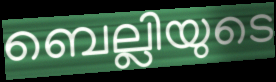
ബെല്ലിയുടെ